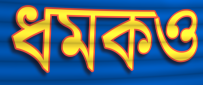
ধমকও